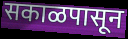
सकाळपासून